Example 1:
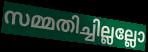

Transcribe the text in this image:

സമ്മതിച്ചില്ലല്ലോ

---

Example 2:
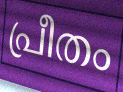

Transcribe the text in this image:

പ്രീതം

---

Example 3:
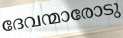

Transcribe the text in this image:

ദേവന്മാരോടു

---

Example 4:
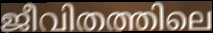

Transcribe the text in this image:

ജീവിതത്തിലെ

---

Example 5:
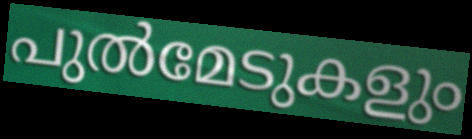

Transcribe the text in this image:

പുൽമേടുകളും